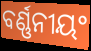
ବର୍ଣ୍ଣନୀୟଂ